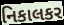
નિકાલકર